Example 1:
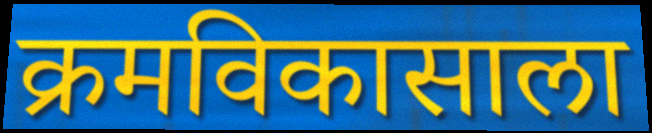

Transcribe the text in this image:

क्रमविकासाला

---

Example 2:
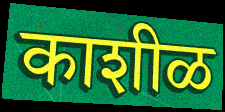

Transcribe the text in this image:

काशीळ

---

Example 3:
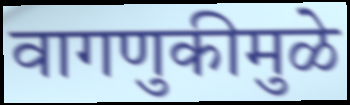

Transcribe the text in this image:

वागणुकीमुळे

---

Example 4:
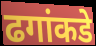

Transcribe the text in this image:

ढगांकडे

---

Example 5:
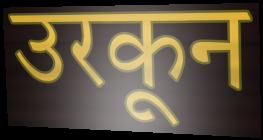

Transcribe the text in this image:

उरकून